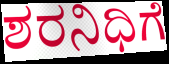
ಶರನಿಧಿಗೆ